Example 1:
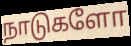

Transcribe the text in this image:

நாடுகளோ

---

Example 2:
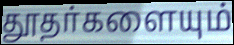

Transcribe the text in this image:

தூதர்களையும்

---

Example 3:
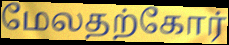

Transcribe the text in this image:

மேலதற்கோர்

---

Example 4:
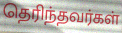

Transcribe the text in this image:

தெரிந்தவர்கள்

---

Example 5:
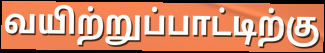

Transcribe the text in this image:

வயிற்றுப்பாட்டிற்கு